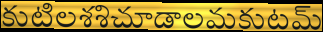
కుటిలశశిచూడాలమకుటమ్